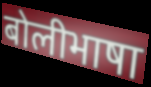
बोलीभाषा